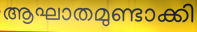
ആഘാതമുണ്ടാക്കി